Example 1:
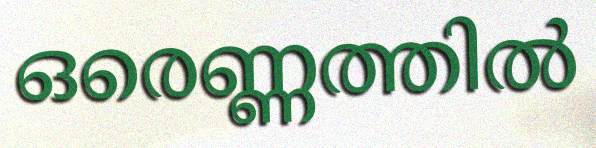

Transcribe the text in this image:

ഒരെണ്ണത്തിൽ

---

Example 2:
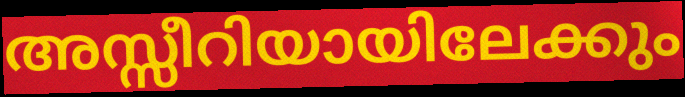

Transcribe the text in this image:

അസ്സീറിയായിലേക്കും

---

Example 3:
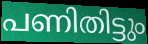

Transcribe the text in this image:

പണിതിട്ടും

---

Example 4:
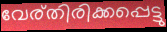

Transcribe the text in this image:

വേര്തിരിക്കപ്പെട്ടു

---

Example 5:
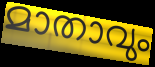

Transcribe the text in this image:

മാതാവും